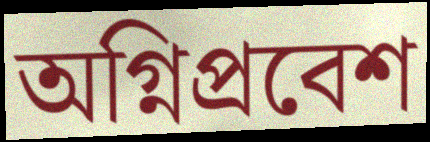
অগ্নিপ্রবেশ